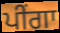
ਪੀਂਗਾ